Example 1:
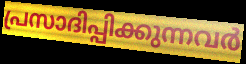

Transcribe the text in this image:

പ്രസാദിപ്പിക്കുന്നവർ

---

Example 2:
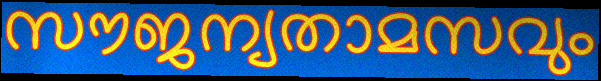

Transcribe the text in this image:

സൗജന്യതാമസവും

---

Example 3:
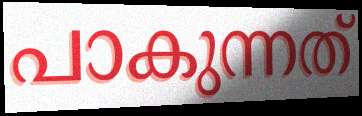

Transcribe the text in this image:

പാകുന്നത്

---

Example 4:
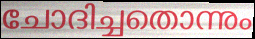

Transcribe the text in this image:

ചോദിച്ചതൊന്നും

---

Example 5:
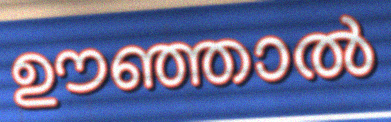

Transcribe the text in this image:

ഊഞ്ഞാൽ